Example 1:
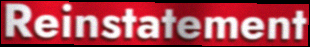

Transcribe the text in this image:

Reinstatement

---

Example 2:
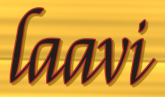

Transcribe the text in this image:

laavi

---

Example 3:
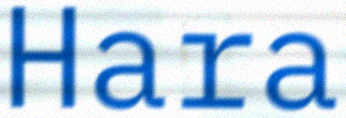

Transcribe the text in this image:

Hara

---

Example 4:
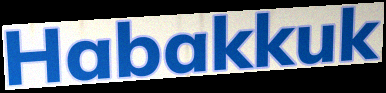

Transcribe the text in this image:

Habakkuk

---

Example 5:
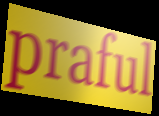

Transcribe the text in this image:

praful